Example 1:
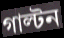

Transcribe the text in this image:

গাল্টন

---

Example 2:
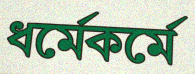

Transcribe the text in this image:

ধর্মেকর্মে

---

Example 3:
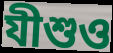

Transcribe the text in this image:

যীশুও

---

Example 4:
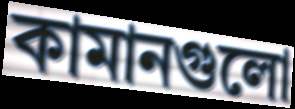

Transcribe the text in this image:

কামানগুলো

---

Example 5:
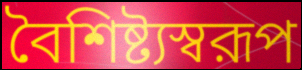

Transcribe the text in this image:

বৈশিষ্ট্যস্বরূপ